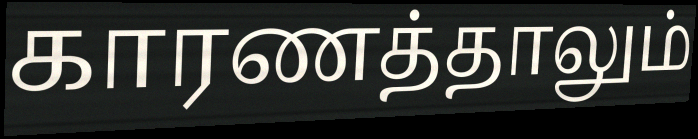
காரணத்தாலும்